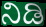
ನಿಡಿ